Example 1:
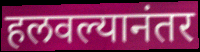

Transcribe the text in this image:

हलवल्यानंतर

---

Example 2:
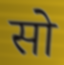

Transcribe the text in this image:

सो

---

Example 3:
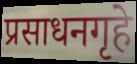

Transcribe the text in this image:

प्रसाधनगृहे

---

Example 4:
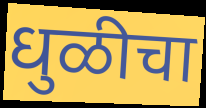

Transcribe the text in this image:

धुळीचा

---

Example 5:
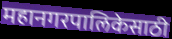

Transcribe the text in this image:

महानगरपालिकेसाठी